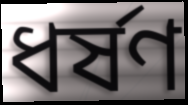
ধর্ষণ